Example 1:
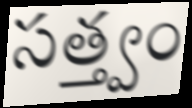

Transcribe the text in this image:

సత్త్వం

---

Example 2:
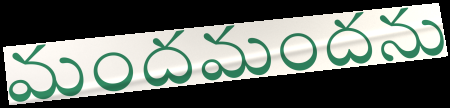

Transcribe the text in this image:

మందమందను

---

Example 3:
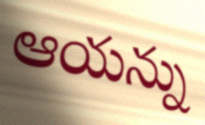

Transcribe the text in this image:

ఆయన్ను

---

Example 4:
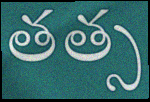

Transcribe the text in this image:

తత్స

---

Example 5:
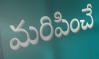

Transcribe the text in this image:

మరిపించే